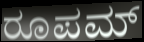
ರೂಪಮ್